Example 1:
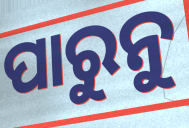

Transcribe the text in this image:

ପାରୁନୁ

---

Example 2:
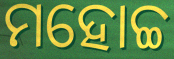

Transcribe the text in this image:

ମହୋଚ୍ଚ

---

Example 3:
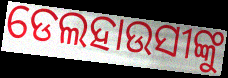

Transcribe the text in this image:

ଡେଲହାଉସୀଙ୍କୁ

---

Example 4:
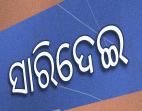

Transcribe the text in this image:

ସାରିଦେଇ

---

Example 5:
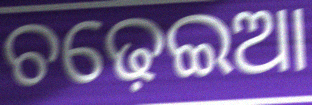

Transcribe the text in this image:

ଚଢ଼େଇଆ